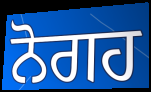
ਨੋਗਹ